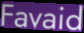
Favaid